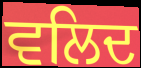
ਵਲਿਦ